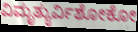
ವಿಮೃತ್ಯುರ್ವಿಶೋಕೋ